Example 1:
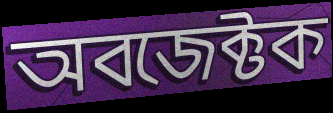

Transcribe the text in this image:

অবজেক্টক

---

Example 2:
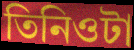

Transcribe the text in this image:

তিনিওটা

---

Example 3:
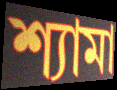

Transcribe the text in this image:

শ্যামা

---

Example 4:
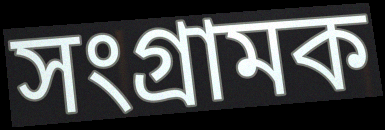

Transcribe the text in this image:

সংগ্ৰামক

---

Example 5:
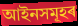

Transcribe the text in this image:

আইনসমূহৰ